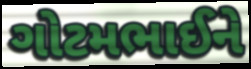
ગોટમભાઈને